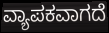
ವ್ಯಾಪಕವಾಗದೆ